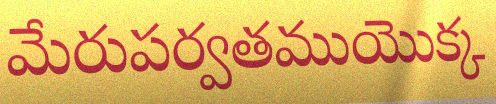
మేరుపర్వతముయొక్క